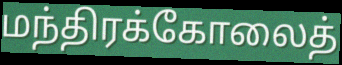
மந்திரக்கோலைத்